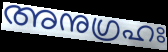
അനുഗ്രഹഃ